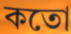
কতো